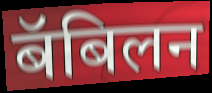
बॅबिलन